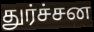
துர்ச்சன